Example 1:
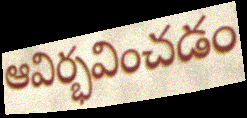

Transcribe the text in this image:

ఆవిర్భవించడం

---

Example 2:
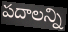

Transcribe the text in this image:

పదాలన్ని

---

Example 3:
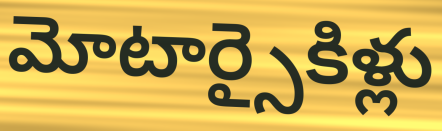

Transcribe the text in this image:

మోటార్సైకిళ్లు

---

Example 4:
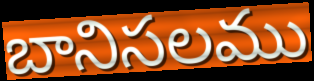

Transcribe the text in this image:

బానిసలము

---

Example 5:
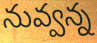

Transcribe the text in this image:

నువ్వన్న